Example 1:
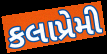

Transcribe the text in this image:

કલાપ્રેમી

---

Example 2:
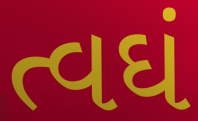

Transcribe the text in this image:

ત્વઘં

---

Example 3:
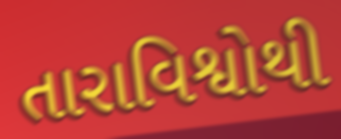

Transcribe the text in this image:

તારાવિશ્વોથી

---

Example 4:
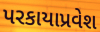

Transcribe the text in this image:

પરકાયાપ્રવેશ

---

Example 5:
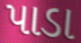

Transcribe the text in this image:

પાડા